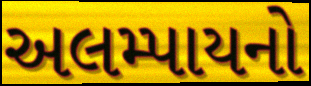
અલમ્પાયનો